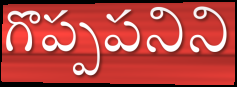
గొప్పపనిని